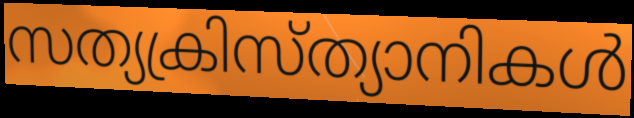
സത്യക്രിസ്ത്യാനികൾ